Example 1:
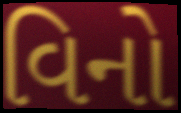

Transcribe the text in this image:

વિનો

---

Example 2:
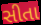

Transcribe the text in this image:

સીતા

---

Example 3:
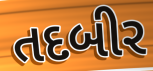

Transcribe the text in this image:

તદબીર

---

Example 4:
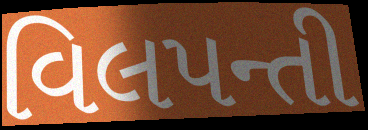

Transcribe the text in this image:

વિલપન્તી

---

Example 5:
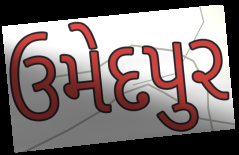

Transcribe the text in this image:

ઉમેદપુર